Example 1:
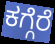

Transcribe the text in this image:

ಕಗ್ಗೆರೆ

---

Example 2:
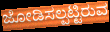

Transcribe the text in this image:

ಜೋಡಿಸಲ್ಪಟ್ಟಿರುವ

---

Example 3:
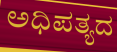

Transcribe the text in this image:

ಅಧಿಪತ್ಯದ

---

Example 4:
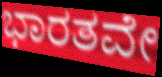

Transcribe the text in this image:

ಭಾರತವೇ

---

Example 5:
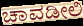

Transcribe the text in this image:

ಚಾವಡೀಲಿ